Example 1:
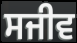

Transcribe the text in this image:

ਸਜੀਵ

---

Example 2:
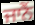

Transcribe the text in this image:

ਜਾਨੈਂ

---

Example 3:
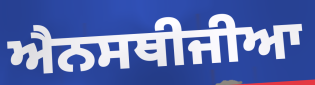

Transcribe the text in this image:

ਐਨਸਥੀਜੀਆ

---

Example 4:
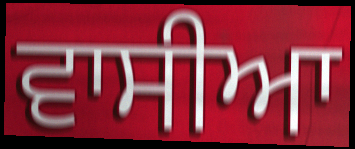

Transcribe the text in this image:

ਵਾਸੀਆ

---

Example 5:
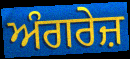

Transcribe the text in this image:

ਅੰਗਰੇਜ਼